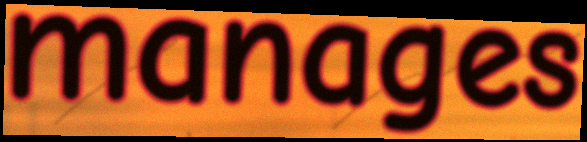
manages